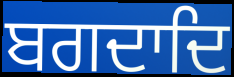
ਬਗਦਾਦਿ